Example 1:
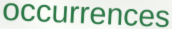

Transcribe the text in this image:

occurrences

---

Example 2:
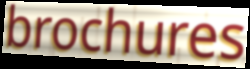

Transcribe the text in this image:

brochures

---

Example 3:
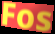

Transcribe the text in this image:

Fos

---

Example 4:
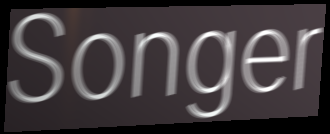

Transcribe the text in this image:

Songer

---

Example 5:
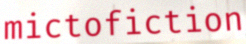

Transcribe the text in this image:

mictofiction